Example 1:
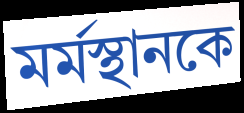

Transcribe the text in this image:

মর্মস্থানকে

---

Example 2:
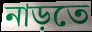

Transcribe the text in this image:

নাড়তে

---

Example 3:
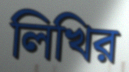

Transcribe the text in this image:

লিখির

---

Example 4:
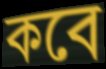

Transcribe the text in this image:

কবে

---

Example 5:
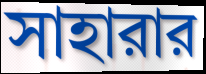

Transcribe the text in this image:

সাহারার